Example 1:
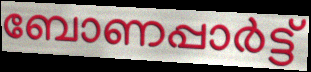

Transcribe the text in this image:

ബോണപ്പാർട്ട്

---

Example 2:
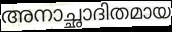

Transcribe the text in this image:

അനാച്ഛാദിതമായ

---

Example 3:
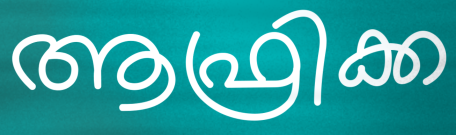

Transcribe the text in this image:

ആഫ്രിക്ക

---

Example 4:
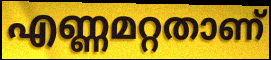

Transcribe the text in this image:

എണ്ണമറ്റതാണ്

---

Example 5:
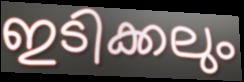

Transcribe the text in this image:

ഇടിക്കലും